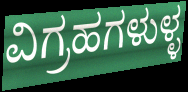
ವಿಗ್ರಹಗಳುಳ್ಳ